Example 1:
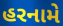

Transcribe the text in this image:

હરનામે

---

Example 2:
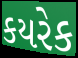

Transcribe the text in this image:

કયરેક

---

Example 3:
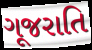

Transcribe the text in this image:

ગૂજરાતિ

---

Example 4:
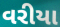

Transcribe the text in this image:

વરીયા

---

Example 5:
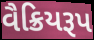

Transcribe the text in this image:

વૈક્રિયરૂપ